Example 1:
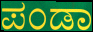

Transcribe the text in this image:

ಪಂಡಾ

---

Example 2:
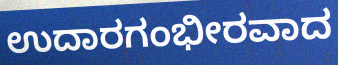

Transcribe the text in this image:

ಉದಾರಗಂಭೀರವಾದ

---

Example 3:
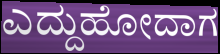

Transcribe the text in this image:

ಎದ್ದುಹೋದಾಗ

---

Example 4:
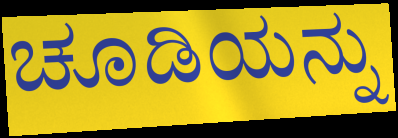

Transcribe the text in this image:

ಚೂಡಿಯನ್ನು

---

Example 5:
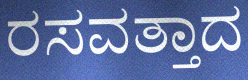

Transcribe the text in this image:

ರಸವತ್ತಾದ